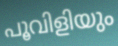
പൂവിളിയും